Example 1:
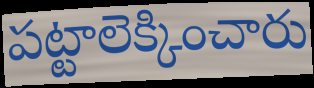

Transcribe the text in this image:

పట్టాలెక్కించారు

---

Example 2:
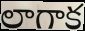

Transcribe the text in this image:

లాగాక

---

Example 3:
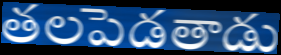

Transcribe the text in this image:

తలపెడతాడు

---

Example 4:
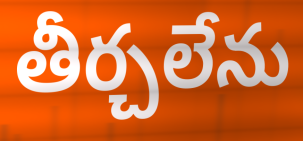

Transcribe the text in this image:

తీర్చలేను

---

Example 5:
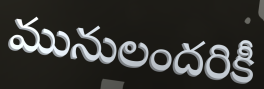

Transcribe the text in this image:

మునులందరికీ